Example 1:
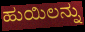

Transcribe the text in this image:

ಹುಯಿಲನ್ನು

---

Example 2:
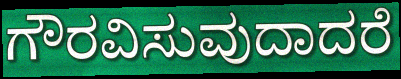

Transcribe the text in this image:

ಗೌರವಿಸುವುದಾದರೆ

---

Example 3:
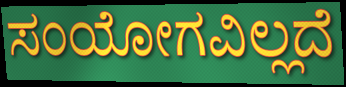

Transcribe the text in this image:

ಸಂಯೋಗವಿಲ್ಲದೆ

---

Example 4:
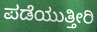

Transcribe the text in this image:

ಪಡೆಯುತ್ತೀರಿ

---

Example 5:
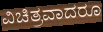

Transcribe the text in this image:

ವಿಚಿತ್ರವಾದರೂ